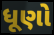
ધૂણો